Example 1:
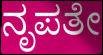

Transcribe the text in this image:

ನೃಪತೇ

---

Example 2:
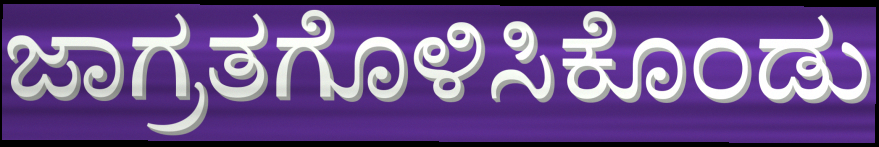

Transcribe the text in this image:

ಜಾಗ್ರತಗೊಳಿಸಿಕೊಂಡು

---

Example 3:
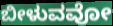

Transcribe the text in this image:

ಬೀಳುವವೋ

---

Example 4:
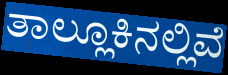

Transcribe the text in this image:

ತಾಲ್ಲೂಕಿನಲ್ಲಿವೆ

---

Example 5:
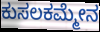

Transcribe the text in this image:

ಕುಸಲಕಮ್ಮೇನ